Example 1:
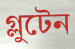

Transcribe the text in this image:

গ্লুটেন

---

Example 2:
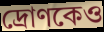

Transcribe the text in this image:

দ্রোণকেও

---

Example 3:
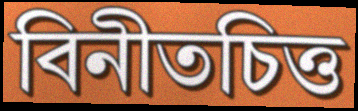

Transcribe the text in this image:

বিনীতচিত্ত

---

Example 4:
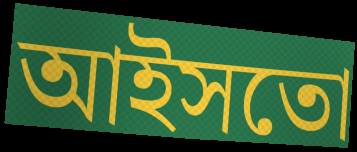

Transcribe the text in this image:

আইসতো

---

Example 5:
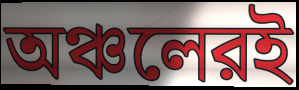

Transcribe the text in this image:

অঞ্চলেরই